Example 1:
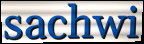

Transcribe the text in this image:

sachwi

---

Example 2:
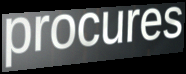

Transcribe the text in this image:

procures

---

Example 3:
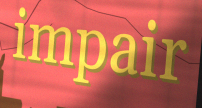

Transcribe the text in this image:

impair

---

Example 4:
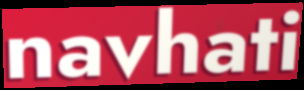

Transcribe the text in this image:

navhati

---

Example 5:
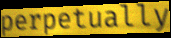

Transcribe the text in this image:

perpetually